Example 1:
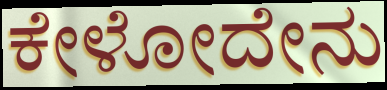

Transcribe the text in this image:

ಕೇಳೋದೇನು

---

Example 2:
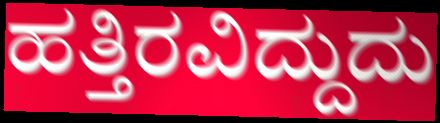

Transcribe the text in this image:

ಹತ್ತಿರವಿದ್ದುದು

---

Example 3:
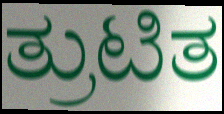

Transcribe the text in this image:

ತ್ರುಟಿತ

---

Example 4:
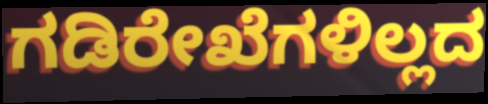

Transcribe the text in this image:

ಗಡಿರೇಖೆಗಳಿಲ್ಲದ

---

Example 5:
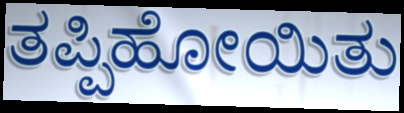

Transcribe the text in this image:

ತಪ್ಪಿಹೋಯಿತು